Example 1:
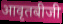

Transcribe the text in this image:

आवृतबीजी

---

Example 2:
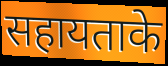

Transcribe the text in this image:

सहायताके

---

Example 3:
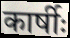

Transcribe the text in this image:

कार्षीः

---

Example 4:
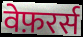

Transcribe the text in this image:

वेफ़रर्स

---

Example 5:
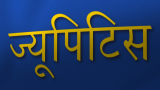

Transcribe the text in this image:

ज्यूपिटिस